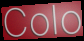
Colo